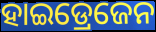
ହାଇଡ୍ରେଜେନ